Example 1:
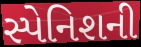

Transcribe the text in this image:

સ્પેનિશની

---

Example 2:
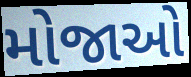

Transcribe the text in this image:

મોજાઓ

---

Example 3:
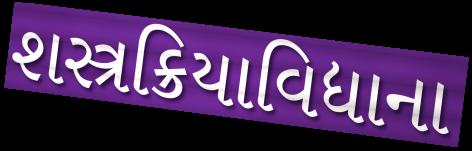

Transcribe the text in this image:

શસ્ત્રક્રિયાવિદ્યાના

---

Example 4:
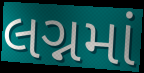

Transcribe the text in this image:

લગ્નમાં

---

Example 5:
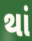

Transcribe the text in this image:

થાં